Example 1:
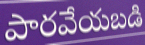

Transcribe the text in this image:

పారవేయబడి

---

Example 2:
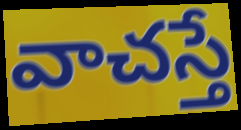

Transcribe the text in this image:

వాచస్తే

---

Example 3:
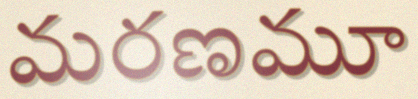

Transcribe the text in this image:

మరణమూ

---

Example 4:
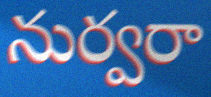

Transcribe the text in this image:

నుర్వరా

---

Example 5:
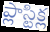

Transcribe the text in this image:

ప్లాస్టిక్ల